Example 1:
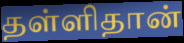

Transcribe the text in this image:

தள்ளிதான்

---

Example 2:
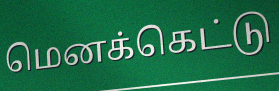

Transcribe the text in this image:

மெனக்கெட்டு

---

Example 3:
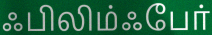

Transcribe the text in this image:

ஃபிலிம்ஃபேர்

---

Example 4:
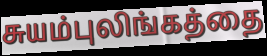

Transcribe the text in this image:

சுயம்புலிங்கத்தை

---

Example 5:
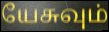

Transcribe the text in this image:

யேசுவும்